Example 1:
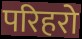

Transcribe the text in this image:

परिहरो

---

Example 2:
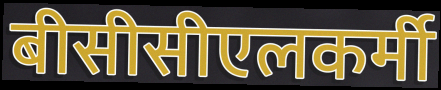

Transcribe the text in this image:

बीसीसीएलकर्मी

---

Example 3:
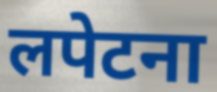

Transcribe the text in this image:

लपेटना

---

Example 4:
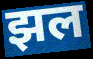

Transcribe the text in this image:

झल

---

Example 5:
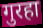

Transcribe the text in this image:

गुरहा